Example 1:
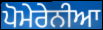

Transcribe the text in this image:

ਪੋਮੇਰੇਨੀਆ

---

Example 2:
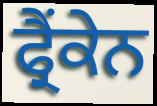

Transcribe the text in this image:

ਫ੍ਰੈਂਕੇਨ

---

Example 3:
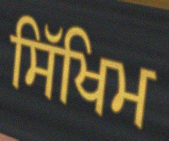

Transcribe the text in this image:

ਸਿੱਖਿਮ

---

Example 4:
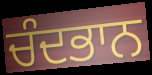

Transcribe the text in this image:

ਚੰਦਭਾਨ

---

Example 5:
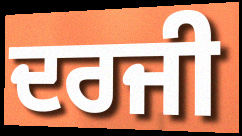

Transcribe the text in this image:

ਦਰਜੀ